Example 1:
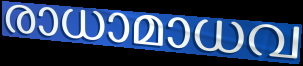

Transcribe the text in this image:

രാധാമാധവ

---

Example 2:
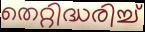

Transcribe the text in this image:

തെറ്റിദ്ധരിച്ച്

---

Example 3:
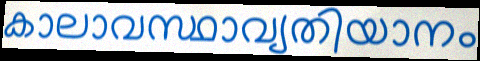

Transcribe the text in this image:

കാലാവസ്ഥാവ്യതിയാനം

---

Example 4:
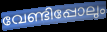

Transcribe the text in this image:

വേണ്ടിപ്പോലും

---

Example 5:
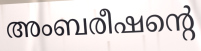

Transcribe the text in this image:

അംബരീഷന്റെ